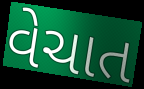
વેચાત